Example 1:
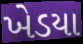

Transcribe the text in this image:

ખેડયા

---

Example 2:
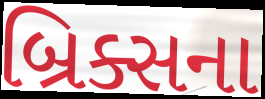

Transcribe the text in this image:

બ્રિક્સના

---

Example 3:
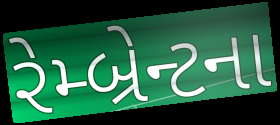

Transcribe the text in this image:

રેમ્બ્રેન્ટના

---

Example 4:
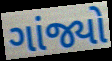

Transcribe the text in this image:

ગાંજ્યો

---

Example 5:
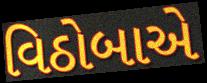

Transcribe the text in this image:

વિઠોબાએ